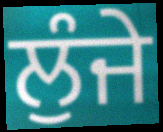
ਲੁੰਜੇ